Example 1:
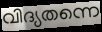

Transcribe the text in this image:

വിദ്യതന്നെ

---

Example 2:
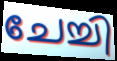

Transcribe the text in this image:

ചേച്ചി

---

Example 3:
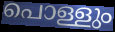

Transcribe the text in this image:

പൊള്ളും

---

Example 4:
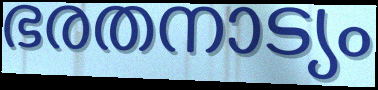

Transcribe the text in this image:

ഭരതനാട്യം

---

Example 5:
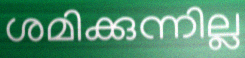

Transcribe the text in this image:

ശമിക്കുന്നില്ല